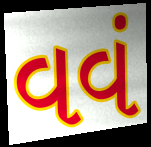
વવં